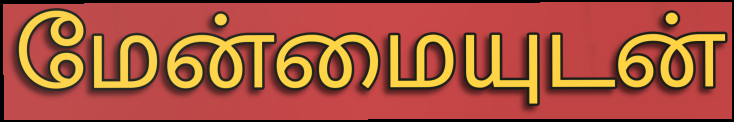
மேன்மையுடன்